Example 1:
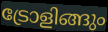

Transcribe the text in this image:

ട്രോളിങ്ങും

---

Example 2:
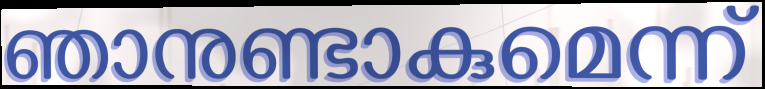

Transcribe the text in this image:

ഞാനുണ്ടാകുമെന്ന്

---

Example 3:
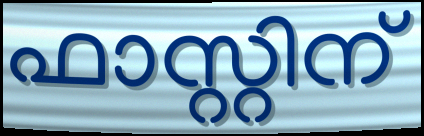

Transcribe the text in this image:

ഫാസ്റ്റിന്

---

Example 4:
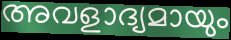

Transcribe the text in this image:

അവളാദ്യമായും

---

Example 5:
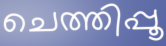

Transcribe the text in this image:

ചെത്തിപ്പൂ